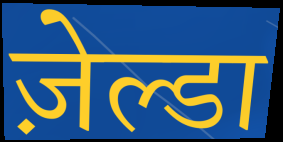
ज़ेल्डा